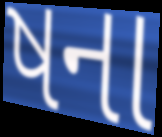
ષના